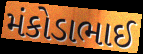
મંકોડાભાઈ